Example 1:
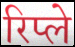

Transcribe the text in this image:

रिप्ले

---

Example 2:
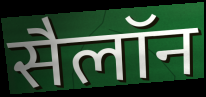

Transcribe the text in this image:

सैलॉन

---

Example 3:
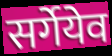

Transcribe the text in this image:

सर्गेयेव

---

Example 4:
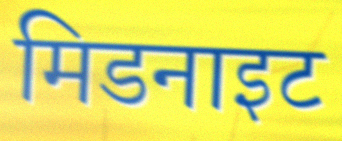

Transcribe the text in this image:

मिडनाइट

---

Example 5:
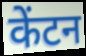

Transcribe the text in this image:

केंटन